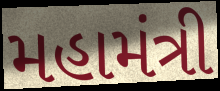
મહામંત્રી